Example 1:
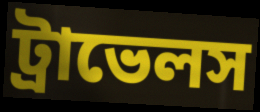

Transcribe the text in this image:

ট্রাভেলস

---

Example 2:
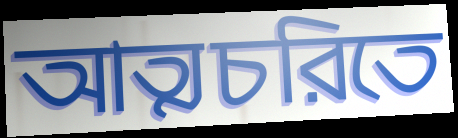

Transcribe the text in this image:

আত্মচরিতে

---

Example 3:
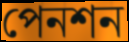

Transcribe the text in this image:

পেনশন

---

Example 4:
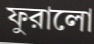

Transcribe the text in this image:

ফুরালো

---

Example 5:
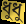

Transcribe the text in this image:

ধুধু